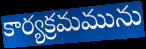
కార్యక్రమమును